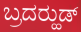
ಬ್ರದರ್‍ಹುಡ್